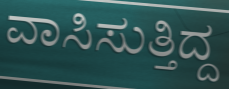
ವಾಸಿಸುತ್ತಿದ್ದ